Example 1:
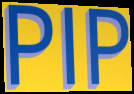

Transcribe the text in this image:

PIP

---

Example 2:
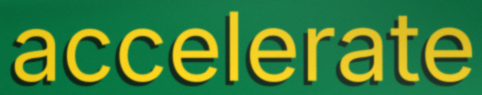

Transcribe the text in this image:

accelerate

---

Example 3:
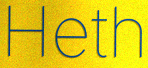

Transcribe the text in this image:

Heth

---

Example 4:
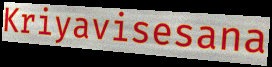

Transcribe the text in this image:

Kriyavisesana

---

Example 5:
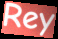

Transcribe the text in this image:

Rey